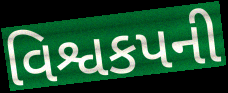
વિશ્વકપની